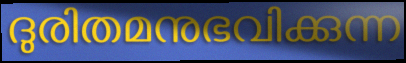
ദുരിതമനുഭവിക്കുന്ന